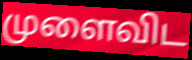
முளைவிட